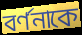
বর্ণনাকে